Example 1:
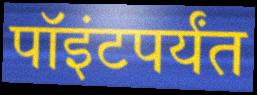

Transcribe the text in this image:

पॉइंटपर्यंत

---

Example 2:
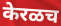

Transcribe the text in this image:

केरळच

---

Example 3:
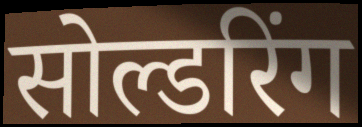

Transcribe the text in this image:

सोल्डरिंग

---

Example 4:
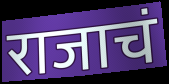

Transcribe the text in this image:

राजाचं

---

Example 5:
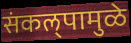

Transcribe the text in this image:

संकल्पामुळे